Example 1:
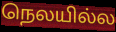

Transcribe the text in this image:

நெலயில்ல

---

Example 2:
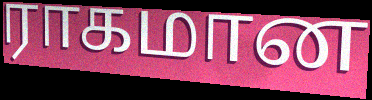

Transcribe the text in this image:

ராகமான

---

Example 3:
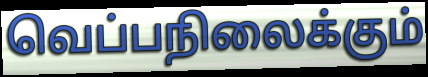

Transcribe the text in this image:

வெப்பநிலைக்கும்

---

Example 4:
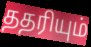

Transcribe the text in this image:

ததரியும்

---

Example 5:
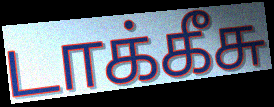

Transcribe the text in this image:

டாக்கீசு